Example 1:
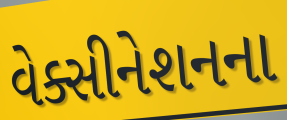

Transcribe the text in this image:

વેક્સીનેશનના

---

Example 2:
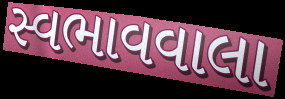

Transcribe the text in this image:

સ્વભાવવાલા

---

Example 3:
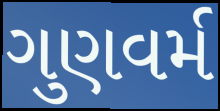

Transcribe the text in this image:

ગુણવર્મ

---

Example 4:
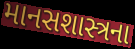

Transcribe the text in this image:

માનસશાસ્ત્રના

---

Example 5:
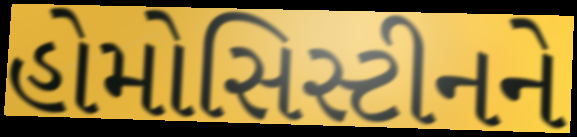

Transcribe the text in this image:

હોમોસિસ્ટીનને